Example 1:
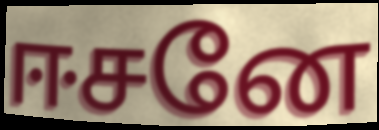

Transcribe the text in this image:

ஈசனே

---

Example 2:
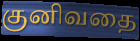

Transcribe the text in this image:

குனிவதை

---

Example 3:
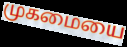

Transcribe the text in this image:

முகமையை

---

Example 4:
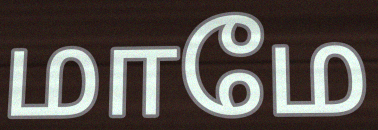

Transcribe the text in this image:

மாமே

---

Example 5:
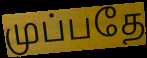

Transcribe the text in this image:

முப்பதே